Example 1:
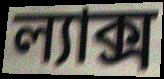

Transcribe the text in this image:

ল্যাক্স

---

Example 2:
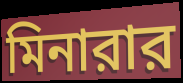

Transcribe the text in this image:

মিনারার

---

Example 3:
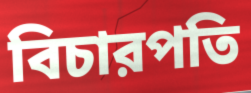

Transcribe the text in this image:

বিচারপতি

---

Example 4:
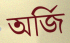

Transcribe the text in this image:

অর্জি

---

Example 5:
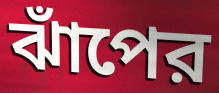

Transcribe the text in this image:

ঝাঁপের